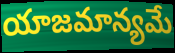
యాజమాన్యమే